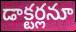
డాక్టర్లనూ